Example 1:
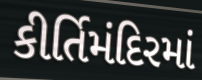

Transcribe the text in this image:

કીર્તિમંદિરમાં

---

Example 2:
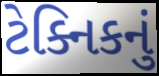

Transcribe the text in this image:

ટેક્નિકનું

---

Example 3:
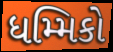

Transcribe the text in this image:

ધમ્મિકો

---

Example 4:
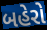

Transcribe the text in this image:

બહેરો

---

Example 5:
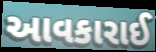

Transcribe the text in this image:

આવકારાઈ